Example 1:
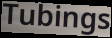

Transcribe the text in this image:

Tubings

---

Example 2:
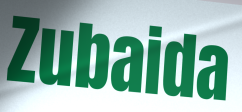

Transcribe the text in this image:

Zubaida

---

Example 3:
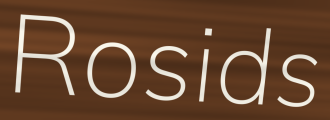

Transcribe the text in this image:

Rosids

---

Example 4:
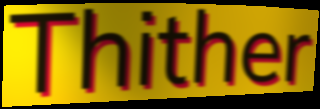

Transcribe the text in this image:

Thither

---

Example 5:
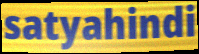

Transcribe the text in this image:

satyahindi